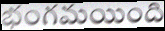
భంగమయింది